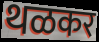
थळकर